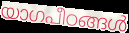
യാഗപീഠങ്ങൾ